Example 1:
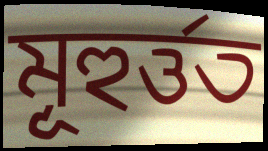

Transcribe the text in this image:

মূহুৰ্ত্তত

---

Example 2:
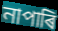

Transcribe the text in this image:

নাপাৰি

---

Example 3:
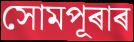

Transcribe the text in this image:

সোমপূৰাৰ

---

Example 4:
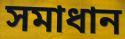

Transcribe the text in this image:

সমাধান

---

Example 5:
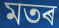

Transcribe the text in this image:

মতৰ